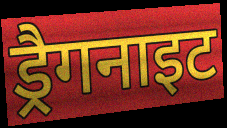
ड्रैगनाइट